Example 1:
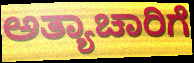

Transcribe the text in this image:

ಅತ್ಯಾಚಾರಿಗೆ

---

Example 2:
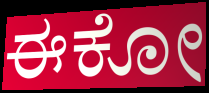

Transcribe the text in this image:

ಈಕೋ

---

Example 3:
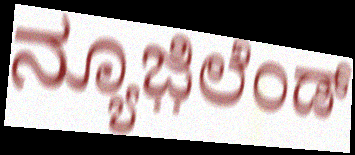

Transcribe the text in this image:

ನ್ಯೂಜ಼ಿಲೆಂಡ್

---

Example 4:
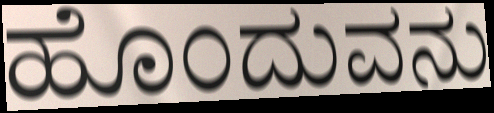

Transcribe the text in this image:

ಹೊಂದುವನು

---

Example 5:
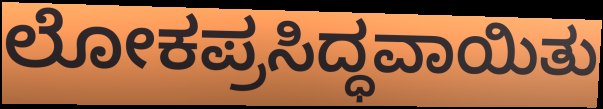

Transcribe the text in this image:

ಲೋಕಪ್ರಸಿದ್ಧವಾಯಿತು